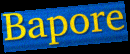
Bapore